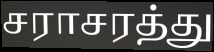
சராசரத்து